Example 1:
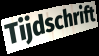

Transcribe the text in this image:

Tijdschrift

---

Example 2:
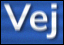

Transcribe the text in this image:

Vej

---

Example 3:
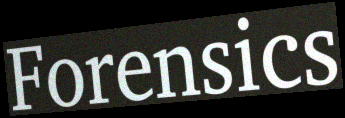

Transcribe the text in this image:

Forensics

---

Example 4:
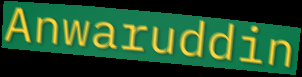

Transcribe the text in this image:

Anwaruddin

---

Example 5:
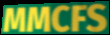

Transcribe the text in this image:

MMCFS